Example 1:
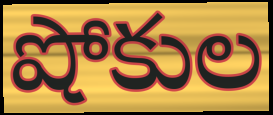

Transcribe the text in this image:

షోకుల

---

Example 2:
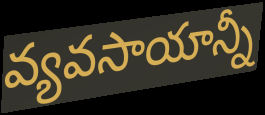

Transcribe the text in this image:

వ్యవసాయాన్నీ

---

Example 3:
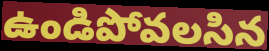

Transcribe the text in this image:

ఉండిపోవలసిన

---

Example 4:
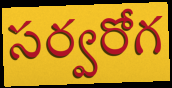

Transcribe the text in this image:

సర్వరోగ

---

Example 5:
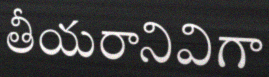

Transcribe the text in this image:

తీయరానివిగా